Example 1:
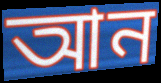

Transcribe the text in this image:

আন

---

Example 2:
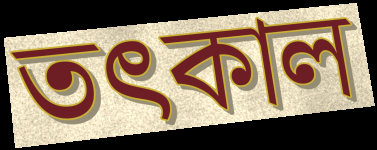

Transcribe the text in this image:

তৎকাল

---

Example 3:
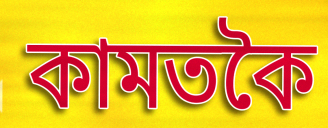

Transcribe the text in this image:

কামতকৈ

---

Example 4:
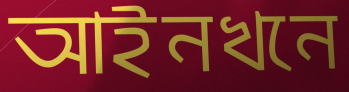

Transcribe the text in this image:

আইনখনে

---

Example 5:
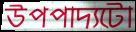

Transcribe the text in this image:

উপপাদ্যটো